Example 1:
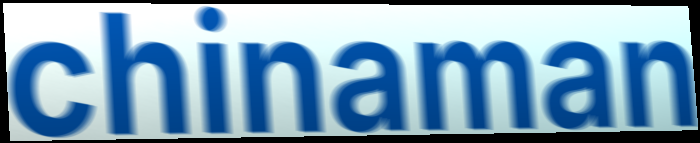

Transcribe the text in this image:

chinaman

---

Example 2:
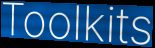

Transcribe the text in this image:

Toolkits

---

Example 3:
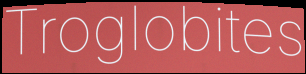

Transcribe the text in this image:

Troglobites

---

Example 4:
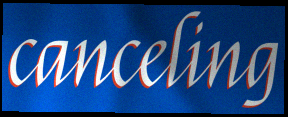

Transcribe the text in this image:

canceling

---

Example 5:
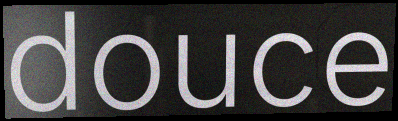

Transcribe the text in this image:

douce